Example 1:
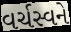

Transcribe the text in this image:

વર્ચસ્વને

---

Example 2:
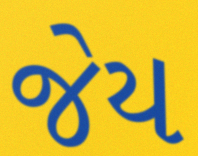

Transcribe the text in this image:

જેય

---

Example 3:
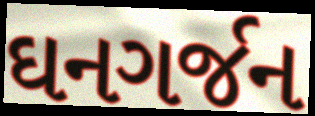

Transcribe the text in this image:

ઘનગર્જન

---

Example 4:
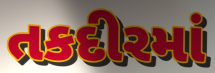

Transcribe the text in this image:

તકદીરમાં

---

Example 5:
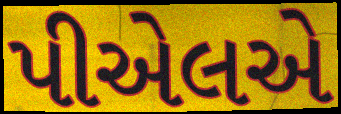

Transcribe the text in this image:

પીએલએ